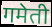
गमेती